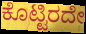
ಕೊಟ್ಟಿರದೇ